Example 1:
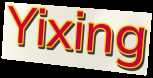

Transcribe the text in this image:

Yixing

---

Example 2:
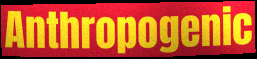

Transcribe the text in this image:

Anthropogenic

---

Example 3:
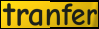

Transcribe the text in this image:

tranfer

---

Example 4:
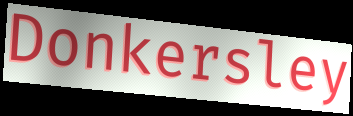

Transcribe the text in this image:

Donkersley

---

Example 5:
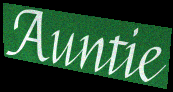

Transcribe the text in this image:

Auntie